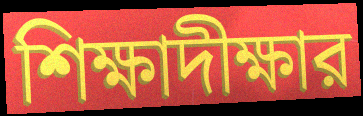
শিক্ষাদীক্ষার